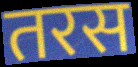
तरस